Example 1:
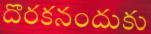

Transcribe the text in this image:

దొరకనందుకు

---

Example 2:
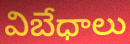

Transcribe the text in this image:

విబేధాలు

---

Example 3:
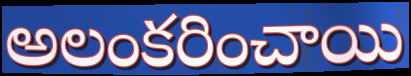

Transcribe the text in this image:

అలంకరించాయి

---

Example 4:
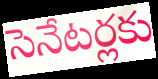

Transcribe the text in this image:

సెనేటర్లకు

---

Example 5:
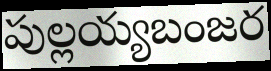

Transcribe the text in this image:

పుల్లయ్యబంజర